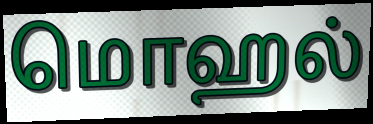
மொஹல்